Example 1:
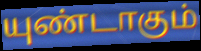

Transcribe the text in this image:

யுண்டாகும்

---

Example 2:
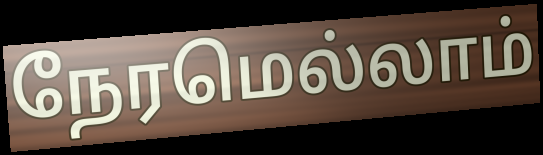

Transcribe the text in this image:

நேரமெல்லாம்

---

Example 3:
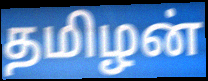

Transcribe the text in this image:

தமிழன்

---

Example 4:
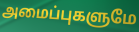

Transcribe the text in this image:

அமைப்புகளுமே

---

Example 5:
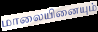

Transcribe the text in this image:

மாலையினையும்